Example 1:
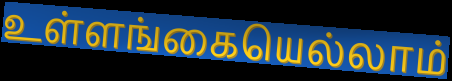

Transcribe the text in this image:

உள்ளங்கையெல்லாம்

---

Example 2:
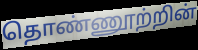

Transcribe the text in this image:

தொண்ணூற்றின்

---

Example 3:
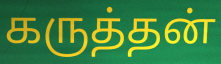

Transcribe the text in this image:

கருத்தன்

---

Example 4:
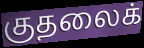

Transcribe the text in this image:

குதலைக்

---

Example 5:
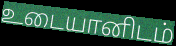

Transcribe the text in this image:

உடையானிடம்